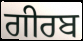
ਗੀਰਬ